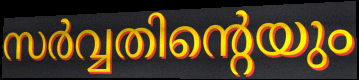
സർവ്വതിന്റെയും